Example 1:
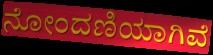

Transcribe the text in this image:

ನೋಂದಣಿಯಾಗಿವೆ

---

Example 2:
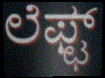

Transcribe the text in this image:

ಲೆಫ್ಟ್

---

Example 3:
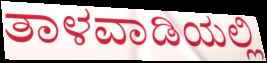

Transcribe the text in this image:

ತಾಳವಾಡಿಯಲ್ಲಿ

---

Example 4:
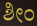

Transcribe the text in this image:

ಶೀಂ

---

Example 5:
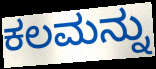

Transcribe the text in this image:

ಕಲಮನ್ನು